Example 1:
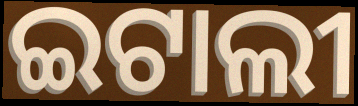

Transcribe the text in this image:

ଇଟାଲୀ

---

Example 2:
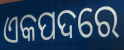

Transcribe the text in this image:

ଏକପଦରେ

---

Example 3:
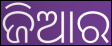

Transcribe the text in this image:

ଜିଆର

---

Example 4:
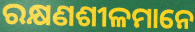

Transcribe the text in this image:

ରକ୍ଷଣଶୀଳମାନେ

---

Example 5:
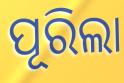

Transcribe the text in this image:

ପୂରିଲା